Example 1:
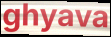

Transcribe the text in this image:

ghyava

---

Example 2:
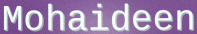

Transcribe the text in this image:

Mohaideen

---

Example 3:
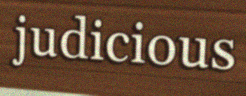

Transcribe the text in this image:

judicious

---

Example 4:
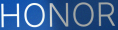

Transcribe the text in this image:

HONOR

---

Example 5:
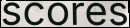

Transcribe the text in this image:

scores